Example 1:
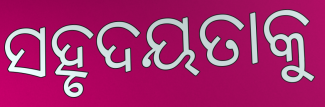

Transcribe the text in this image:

ସହୃଦୟତାକୁ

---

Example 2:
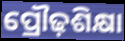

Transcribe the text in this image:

ପ୍ରୌଢ଼ଶିକ୍ଷା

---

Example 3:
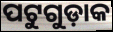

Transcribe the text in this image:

ପଟୁଗୁଡ଼ାକ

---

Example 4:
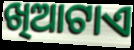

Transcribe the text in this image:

ଖିଆଟାଏ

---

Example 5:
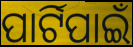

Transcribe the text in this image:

ପାର୍ଟିପାଇଁ